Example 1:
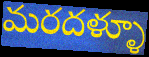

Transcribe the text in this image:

మరదళ్ళూ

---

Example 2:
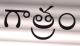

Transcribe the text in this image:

గాత్రం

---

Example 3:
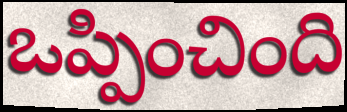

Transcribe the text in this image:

ఒప్పించింది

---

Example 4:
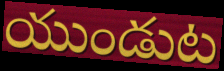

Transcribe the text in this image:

యుండుట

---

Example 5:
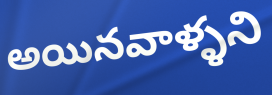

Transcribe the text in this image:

అయినవాళ్ళని